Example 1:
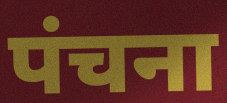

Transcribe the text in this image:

पंचना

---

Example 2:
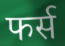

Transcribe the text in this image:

फर्स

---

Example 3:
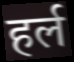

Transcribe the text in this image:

हर्ल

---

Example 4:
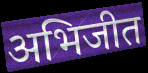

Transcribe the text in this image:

अभिजीत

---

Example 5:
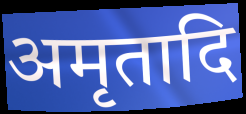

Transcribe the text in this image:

अमृतादि